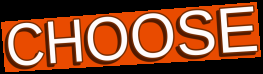
CHOOSE